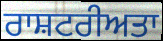
ਰਾਸ਼ਟਰੀਅਤਾ